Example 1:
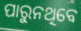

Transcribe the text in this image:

ପାରୁନଥିବେ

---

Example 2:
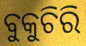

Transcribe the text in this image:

ବୁକୁଚିରି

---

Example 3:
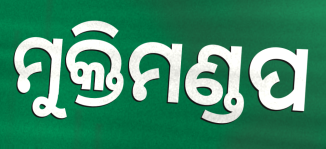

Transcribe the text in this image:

ମୁକ୍ତିମଣ୍ଡପ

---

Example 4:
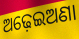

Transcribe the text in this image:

ଅଢ଼େଇଅଣା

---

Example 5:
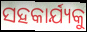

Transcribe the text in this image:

ସହକାର୍ଯ୍ୟକୁ